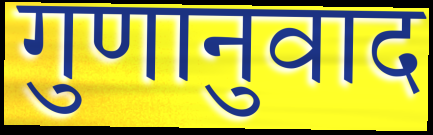
गुणानुवाद